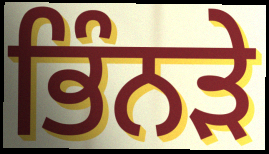
ਭਿੰਨੜੇ